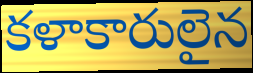
కళాకారులైన